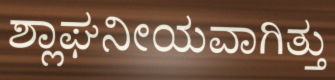
ಶ್ಲಾಘನೀಯವಾಗಿತ್ತು